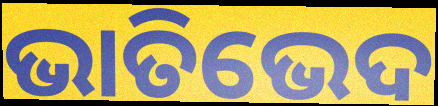
ଭାତିଭେଦ